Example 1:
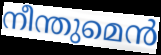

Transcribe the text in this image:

നീന്തുമെൻ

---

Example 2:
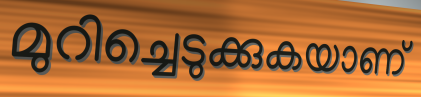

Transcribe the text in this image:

മുറിച്ചെടുക്കുകയാണ്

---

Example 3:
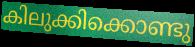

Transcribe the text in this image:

കിലുക്കിക്കൊണ്ടു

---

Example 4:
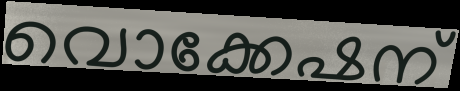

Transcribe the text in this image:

വൊക്കേഷന്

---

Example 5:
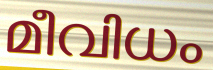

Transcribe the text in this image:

മീവിധം